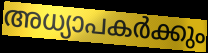
അധ്യാപകർക്കും